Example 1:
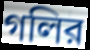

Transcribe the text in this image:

গলির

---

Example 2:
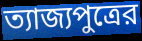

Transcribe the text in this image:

ত্যাজ্যপুত্রের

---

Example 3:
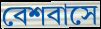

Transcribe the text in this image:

বেশবাসে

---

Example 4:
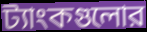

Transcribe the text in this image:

ট্যাংকগুলোর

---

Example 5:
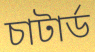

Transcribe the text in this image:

চাটার্ড